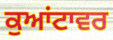
ਕੁਆਂਟਾਵਰ